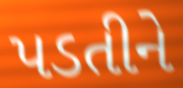
પડતીને